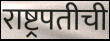
राष्ट्रपतीची